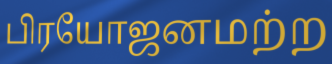
பிரயோஜனமற்ற